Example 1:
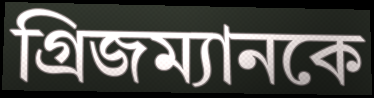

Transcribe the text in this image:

গ্রিজম্যানকে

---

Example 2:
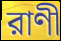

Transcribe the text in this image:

রাণী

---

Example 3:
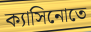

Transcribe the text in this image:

ক্যাসিনোতে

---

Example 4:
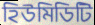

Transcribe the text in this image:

হিউমিডিটি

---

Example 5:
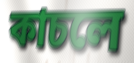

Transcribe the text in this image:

কাচলে